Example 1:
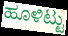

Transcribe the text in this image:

ಹೂಳಿಟ್ಟು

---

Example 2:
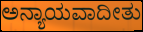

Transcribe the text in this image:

ಅನ್ಯಾಯವಾದೀತು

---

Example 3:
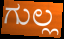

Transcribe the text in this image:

ಗುಲ್ಲ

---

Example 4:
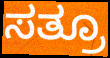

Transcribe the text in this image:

ಸತ್ರೂ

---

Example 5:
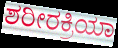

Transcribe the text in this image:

ಶರೀರಕ್ರಿಯಾ